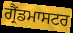
ਗ੍ਰੈਂਡਮਾਸਟਰ